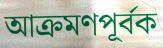
আক্রমণপূর্বক